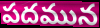
పదమున